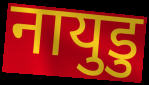
नायुडु